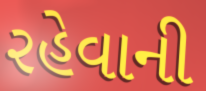
રહેવાની